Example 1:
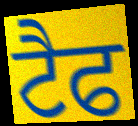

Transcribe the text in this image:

ਟੈਫ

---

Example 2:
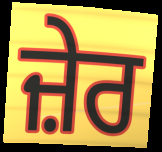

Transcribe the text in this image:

ਜ਼ੇਰ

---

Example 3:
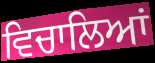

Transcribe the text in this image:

ਵਿਚਾਲਿਆਂ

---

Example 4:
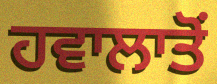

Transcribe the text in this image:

ਹਵਾਲਾਤੋਂ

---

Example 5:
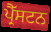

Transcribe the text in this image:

ਪ੍ਰੈੱਸਟਨ